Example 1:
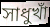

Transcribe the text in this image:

সাধুখাঁ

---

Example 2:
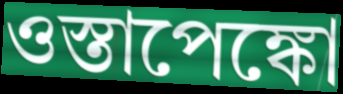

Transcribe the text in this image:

ওস্তাপেঙ্কো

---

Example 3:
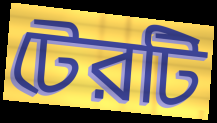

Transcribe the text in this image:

টেরটি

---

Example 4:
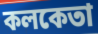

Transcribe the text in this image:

কলকেতা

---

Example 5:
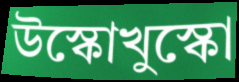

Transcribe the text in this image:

উস্কোখুস্কো